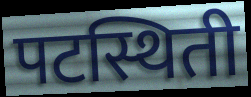
पटस्थिती